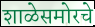
शाळेसमोरचे